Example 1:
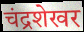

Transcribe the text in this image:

चंद्रशेखर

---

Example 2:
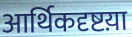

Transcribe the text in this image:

आर्थिकदृष्टय़ा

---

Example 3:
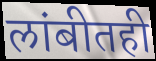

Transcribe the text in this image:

लांबीतही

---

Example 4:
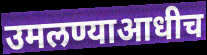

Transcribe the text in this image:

उमलण्याआधीच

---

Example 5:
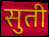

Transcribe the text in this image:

सुती